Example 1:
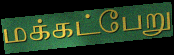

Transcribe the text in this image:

மக்கட்பேறு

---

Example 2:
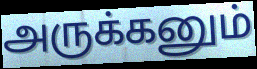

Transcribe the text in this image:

அருக்கனும்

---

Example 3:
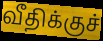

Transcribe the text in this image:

வீதிக்குச்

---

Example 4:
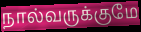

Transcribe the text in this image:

நால்வருக்குமே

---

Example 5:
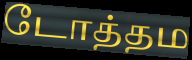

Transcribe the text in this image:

டோத்தம